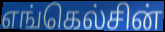
எங்கெல்சின்